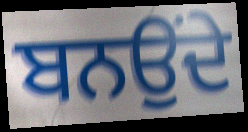
ਬਨਉਂਦੇ